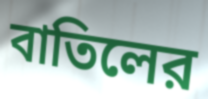
বাতিলের